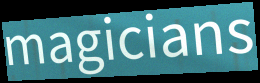
magicians